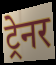
ट्रेनर